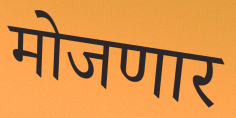
मोजणार